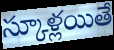
స్కూళ్లయితే